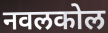
नवलकोल